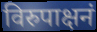
विरुपाक्षनं